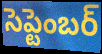
సెప్టెంబర్